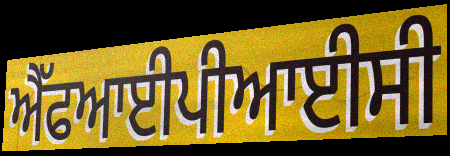
ਐੱਫਆਈਪੀਆਈਸੀ